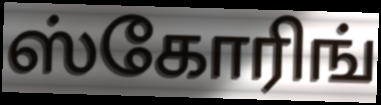
ஸ்கோரிங்